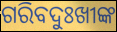
ଗରିବଦୁଃଖୀଙ୍କ